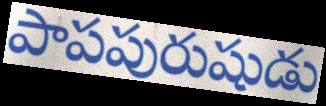
పాపపురుషుడు